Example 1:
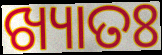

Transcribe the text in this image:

ଖ୍ୟାତଃ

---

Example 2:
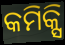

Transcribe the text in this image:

କମିକ୍ସି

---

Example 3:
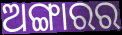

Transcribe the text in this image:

ଅଙ୍ଗାରର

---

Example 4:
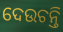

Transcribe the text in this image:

ଦେଉଚନ୍ତି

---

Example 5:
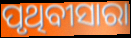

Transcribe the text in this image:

ପୃଥିବୀସାରା